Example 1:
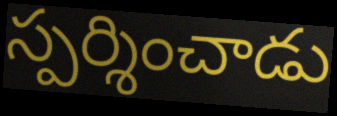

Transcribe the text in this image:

స్పర్శించాడు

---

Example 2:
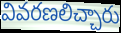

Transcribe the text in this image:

వివరణలిచ్చారు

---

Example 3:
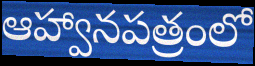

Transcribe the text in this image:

ఆహ్వానపత్రంలో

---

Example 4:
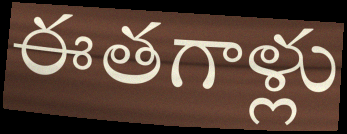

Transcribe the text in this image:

ఈతగాళ్లు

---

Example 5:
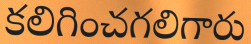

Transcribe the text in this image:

కలిగించగలిగారు